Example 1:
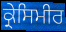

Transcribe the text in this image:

ਕ੍ਰੇਸਿਮੀਰ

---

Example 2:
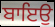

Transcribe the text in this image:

ਬਾਇਉ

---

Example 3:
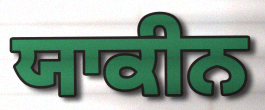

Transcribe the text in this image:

ਯਾਕੀਨ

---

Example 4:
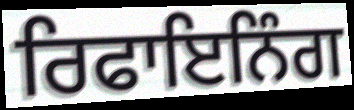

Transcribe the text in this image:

ਰਿਫਾਇਨਿੰਗ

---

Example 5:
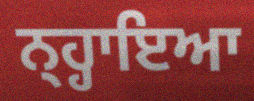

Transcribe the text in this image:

ਨ੍ਹ੍ਹਾਇਆ